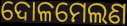
ଦୋଳମେଲଣ